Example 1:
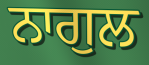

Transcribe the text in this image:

ਨਾਗੁਲ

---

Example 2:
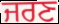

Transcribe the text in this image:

ਜਰਣ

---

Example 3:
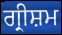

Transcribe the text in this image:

ਗ੍ਰੀਸ਼ਮ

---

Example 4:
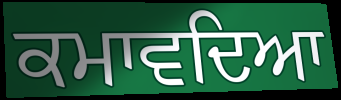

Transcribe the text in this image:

ਕਮਾਵਦਿਆ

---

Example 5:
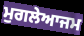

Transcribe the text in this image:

ਮੁਗਲੇਆਜਮ